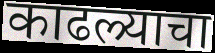
काढल्याचा